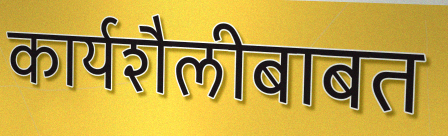
कार्यशैलीबाबत